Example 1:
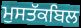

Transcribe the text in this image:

ਮੁਸਤੱਕਬਿਲ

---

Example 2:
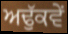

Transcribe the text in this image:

ਅਢੁੱਕਵੇਂ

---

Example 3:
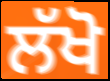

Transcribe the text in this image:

ਲੱਖੋ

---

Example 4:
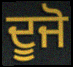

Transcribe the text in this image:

ਦੂਜੋ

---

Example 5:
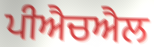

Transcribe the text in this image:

ਪੀਐਚਐਲ